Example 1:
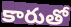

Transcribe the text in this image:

కారుతో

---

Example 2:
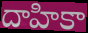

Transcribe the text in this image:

దాహికా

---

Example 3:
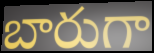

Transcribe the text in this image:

బారుగా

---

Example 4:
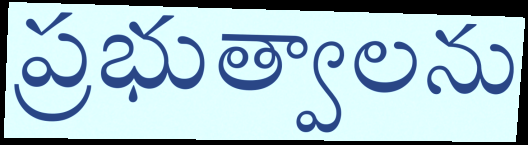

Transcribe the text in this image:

ప్రభుత్వాలను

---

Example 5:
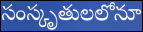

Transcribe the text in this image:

సంస్కృతులలోనూ